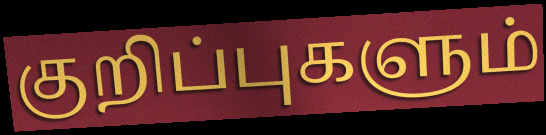
குறிப்புகளும்